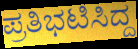
ಪ್ರತಿಭಟಿಸಿದ್ದ